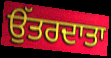
ਉੱਤਰਦਾਤਾ